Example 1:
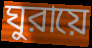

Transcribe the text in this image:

ঘুরায়ে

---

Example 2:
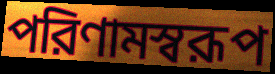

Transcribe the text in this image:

পরিণামস্বরূপ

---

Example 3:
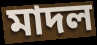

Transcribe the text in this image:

মাদল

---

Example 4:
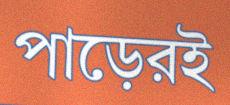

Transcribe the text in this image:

পাড়েরই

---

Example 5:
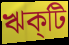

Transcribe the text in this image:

ঋক্‌টি